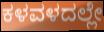
ಕಳವಳದಲ್ಲೇ